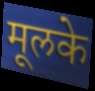
मूलके